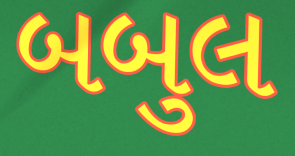
બબુલ